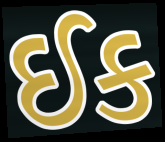
ઈક